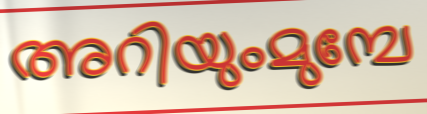
അറിയുംമുമ്പേ